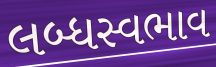
લબ્ધસ્વભાવ